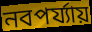
নবপর্য্যায়